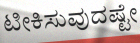
ಟೀಕಿಸುವುದಷ್ಟೇ